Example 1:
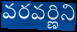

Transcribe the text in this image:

వరవర్ణిని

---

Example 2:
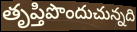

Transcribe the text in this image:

తృప్తిపొందుచున్నది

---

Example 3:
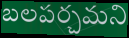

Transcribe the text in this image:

బలపర్చమని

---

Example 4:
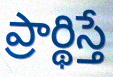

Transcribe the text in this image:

ప్రార్థిస్తే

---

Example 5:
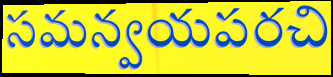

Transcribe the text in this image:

సమన్వయపరచి